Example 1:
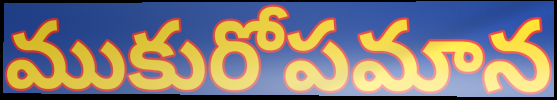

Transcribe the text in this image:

ముకురోపమాన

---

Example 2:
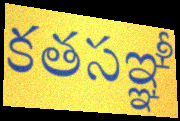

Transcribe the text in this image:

కతసఞ్ఞీ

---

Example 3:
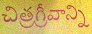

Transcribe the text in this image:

చిత్రగ్రీవాన్ని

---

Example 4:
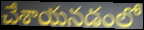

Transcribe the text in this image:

చేశాయనడంలో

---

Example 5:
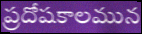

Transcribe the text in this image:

ప్రదోషకాలమున